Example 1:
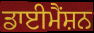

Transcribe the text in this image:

ਡਾਈਮੈਂਸ਼ਨ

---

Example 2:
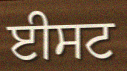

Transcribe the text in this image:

ਈਸਟ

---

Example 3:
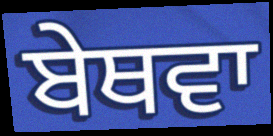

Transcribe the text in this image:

ਬੇਥਵਾ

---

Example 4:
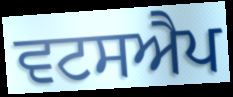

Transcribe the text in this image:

ਵਟਸਐਪ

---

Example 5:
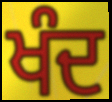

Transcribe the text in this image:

ਖੰਦ